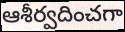
ఆశీర్వదించగా